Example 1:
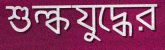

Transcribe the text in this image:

শুল্কযুদ্ধের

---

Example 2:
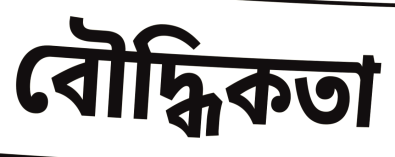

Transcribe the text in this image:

বৌদ্ধিকতা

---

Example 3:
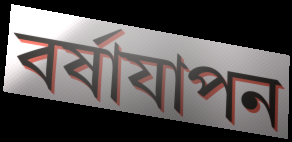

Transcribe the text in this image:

বর্ষাযাপন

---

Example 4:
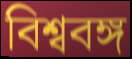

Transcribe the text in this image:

বিশ্ববঙ্গ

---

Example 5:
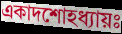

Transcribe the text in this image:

একাদশোহধ্যায়ঃ